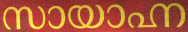
സായാഹ്ന